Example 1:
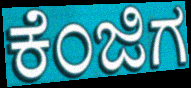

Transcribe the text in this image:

ಕೆಂಜಿಗ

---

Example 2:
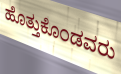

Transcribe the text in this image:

ಹೊತ್ತುಕೊಂಡವರು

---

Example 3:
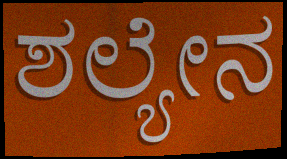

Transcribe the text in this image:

ಶಲ್ಯೇನ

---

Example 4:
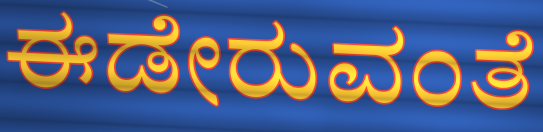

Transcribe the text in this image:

ಈಡೇರುವಂತೆ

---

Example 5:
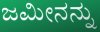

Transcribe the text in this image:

ಜಮೀನನ್ನು